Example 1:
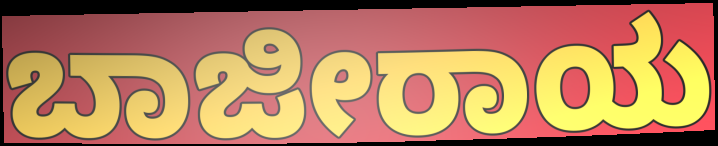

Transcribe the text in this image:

ಬಾಜೀರಾಯ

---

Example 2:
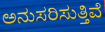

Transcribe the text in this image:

ಅನುಸರಿಸುತ್ತಿವೆ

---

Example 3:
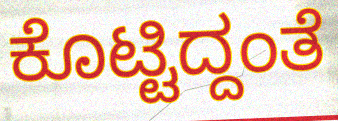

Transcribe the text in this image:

ಕೊಟ್ಟಿದ್ದಂತೆ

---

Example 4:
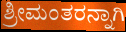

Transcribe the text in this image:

ಶ್ರೀಮಂತರನ್ನಾಗಿ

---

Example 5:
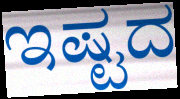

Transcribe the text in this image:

ಇಷ್ಟದ